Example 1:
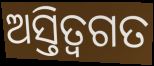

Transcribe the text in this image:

ଅସ୍ତିତ୍ବଗତ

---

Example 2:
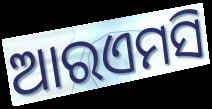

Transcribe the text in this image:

ଆରଏମସି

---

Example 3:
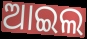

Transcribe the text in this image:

ଆଇଲ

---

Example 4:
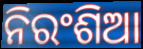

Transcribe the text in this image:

ନିରଂଶିଆ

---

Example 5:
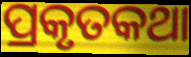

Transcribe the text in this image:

ପ୍ରକୃତକଥା